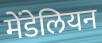
मेंडेलियन